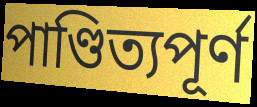
পাণ্ডিত্যপূৰ্ণ